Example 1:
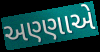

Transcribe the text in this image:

અણ્ણાએ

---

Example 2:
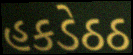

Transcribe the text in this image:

હકડેઠઠ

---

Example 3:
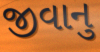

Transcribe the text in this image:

જીવાનુ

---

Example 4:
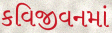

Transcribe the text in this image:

કવિજીવનમાં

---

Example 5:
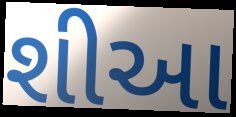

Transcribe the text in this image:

શીઆ